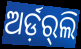
ଅର୍ଡ଼ର୍‌ଲି